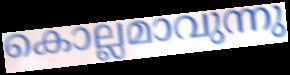
കൊല്ലമാവുന്നു